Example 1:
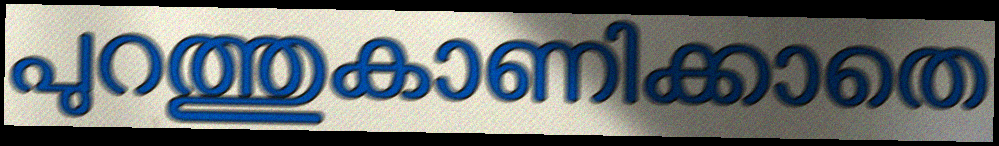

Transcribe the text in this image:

പുറത്തുകാണിക്കാതെ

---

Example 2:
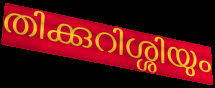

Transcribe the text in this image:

തിക്കുറിശ്ശിയും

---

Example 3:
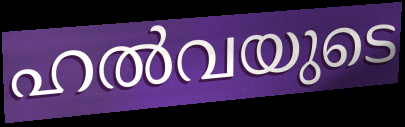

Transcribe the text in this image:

ഹൽവയുടെ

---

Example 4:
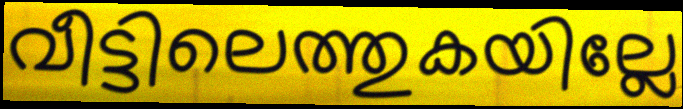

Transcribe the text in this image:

വീട്ടിലെത്തുകയില്ലേ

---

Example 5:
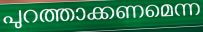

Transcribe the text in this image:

പുറത്താക്കണമെന്ന